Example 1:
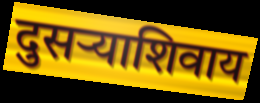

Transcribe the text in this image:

दुसऱ्याशिवाय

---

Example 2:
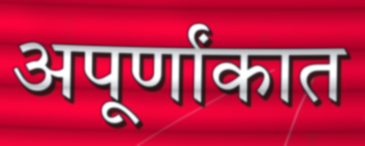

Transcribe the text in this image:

अपूर्णांकात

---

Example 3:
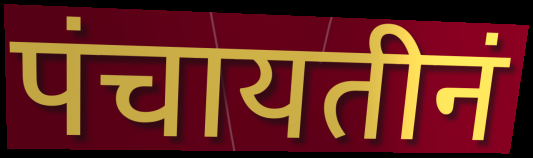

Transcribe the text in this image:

पंचायतीनं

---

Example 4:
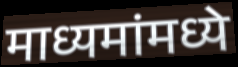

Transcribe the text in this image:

माध्यमांमध्ये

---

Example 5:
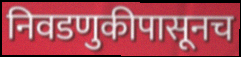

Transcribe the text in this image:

निवडणुकीपासूनच